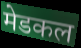
मेडकल